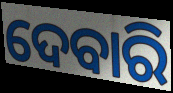
ଦେବାରି